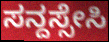
ಸನ್ದಸ್ಸೇಸಿ